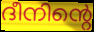
ദീനിന്റെ